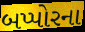
બપ્પોરના